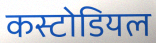
कस्टोडियल